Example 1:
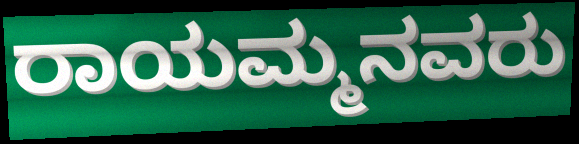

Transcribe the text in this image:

ರಾಯಮ್ಮನವರು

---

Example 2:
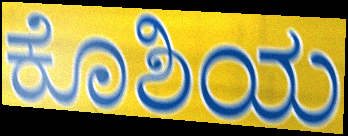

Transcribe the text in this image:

ಕೊಶಿಯ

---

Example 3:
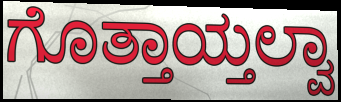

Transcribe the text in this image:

ಗೊತ್ತಾಯ್ತಲ್ವಾ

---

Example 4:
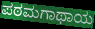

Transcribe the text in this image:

ಪಠಮಗಾಥಾಯ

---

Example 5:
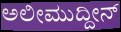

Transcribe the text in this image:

ಅಲೀಮುದ್ದೀನ್